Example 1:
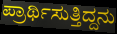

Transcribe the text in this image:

ಪ್ರಾರ್ಥಿಸುತ್ತಿದ್ದನು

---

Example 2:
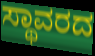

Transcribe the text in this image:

ಸ್ಥಾವರದ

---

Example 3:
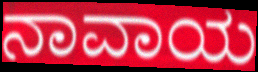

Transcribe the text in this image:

ನಾವಾಯ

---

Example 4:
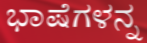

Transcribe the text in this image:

ಭಾಷೆಗಳನ್ನ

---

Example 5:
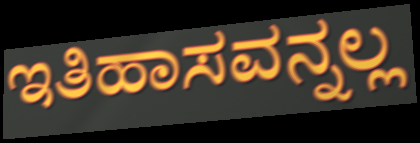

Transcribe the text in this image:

ಇತಿಹಾಸವನ್ನಲ್ಲ